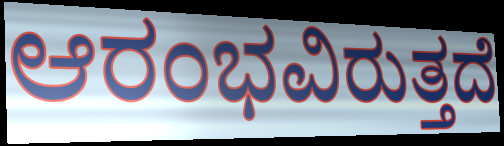
ಆರಂಭವಿರುತ್ತದೆ